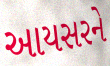
આયસરને